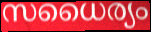
സധൈര്യം